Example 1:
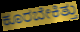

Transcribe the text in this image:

ಕೂರಬೇಕಿತ್ತು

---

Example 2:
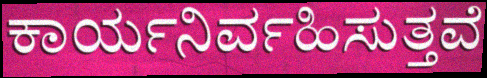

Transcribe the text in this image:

ಕಾರ್ಯನಿರ್ವಹಿಸುತ್ತವೆ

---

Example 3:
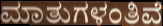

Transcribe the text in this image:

ಮಾತುಗಳಂತಿವೆ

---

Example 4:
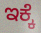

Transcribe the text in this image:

ಇಕ್ಕೆ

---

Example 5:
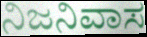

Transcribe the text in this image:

ನಿಜನಿವಾಸ